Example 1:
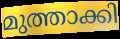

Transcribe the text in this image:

മുത്താക്കി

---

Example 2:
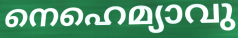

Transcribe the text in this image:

നെഹെമ്യാവു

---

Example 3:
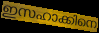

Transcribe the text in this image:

ഇസഹാക്കിനെ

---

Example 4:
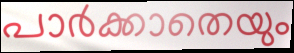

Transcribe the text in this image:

പാർക്കാതെയും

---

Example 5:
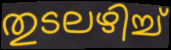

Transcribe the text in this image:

തുടലഴിച്ച്